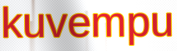
kuvempu